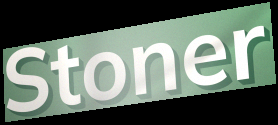
Stoner